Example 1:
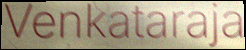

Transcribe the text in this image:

Venkataraja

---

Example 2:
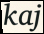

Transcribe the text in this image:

kaj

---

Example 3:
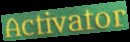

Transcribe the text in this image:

Activator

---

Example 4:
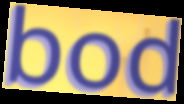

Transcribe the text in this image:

bod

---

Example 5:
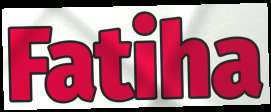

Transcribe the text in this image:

Fatiha